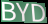
BYD